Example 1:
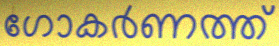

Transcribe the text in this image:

ഗോകർണത്ത്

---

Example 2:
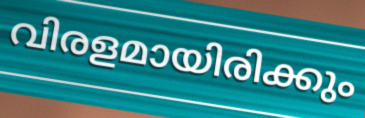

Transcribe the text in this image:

വിരളമായിരിക്കും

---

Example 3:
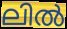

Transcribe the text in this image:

ലിൽ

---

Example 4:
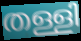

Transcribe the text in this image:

തള്ളി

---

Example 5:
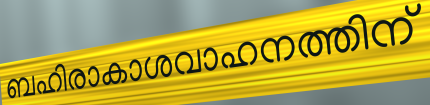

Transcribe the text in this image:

ബഹിരാകാശവാഹനത്തിന്